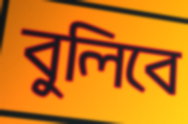
বুলিবে